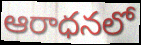
ఆరాధనలో